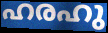
ഹരഹു